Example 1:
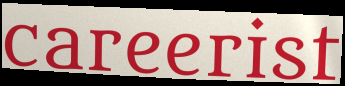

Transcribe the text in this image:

careerist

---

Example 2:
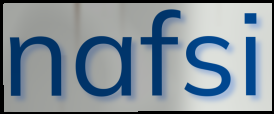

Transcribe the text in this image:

nafsi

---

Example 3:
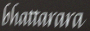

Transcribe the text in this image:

bhattarara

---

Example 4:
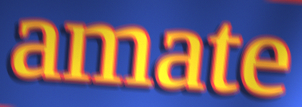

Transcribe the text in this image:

amate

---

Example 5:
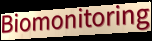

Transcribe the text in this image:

Biomonitoring